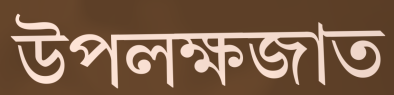
উপলক্ষজাত